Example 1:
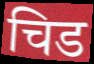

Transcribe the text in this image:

चिड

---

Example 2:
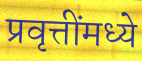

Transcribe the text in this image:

प्रवृत्तींमध्ये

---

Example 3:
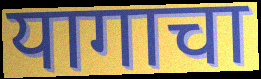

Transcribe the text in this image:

यागाचा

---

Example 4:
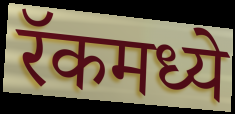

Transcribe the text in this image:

रॅकमध्ये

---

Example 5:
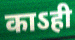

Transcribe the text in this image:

काऽही